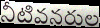
నీటివనరుల